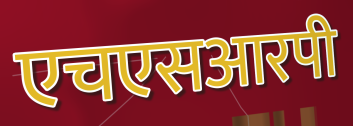
एचएसआरपी